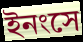
ইনংসে